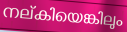
നല്‌കിയെങ്കിലും